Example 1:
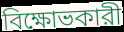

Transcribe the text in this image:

বিক্ষোভকারী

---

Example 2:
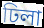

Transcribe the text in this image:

ঢিলা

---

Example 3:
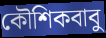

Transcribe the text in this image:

কৌশিকবাবু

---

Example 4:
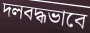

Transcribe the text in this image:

দলবদ্ধভাবে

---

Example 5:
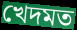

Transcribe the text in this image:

খেদমত